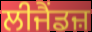
ਲੀਜੈਂਡਜ਼